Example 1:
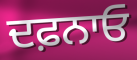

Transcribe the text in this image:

ਦਫ਼ਨਾਓ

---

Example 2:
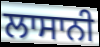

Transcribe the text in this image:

ਲਾਸਾਨੀ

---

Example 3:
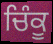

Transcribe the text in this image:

ਚਿੰਕੂ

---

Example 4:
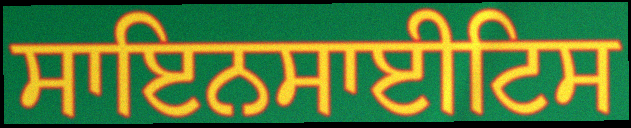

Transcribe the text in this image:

ਸਾਇਨਸਾਈਟਿਸ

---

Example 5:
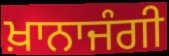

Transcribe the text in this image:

ਖ਼ਾਨਾਜੰਗੀ